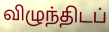
விழுந்திடப்